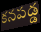
కనపడ్డ